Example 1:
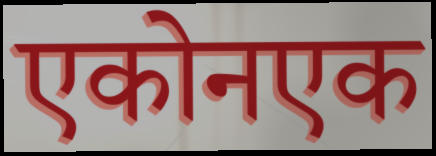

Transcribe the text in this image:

एकोनएक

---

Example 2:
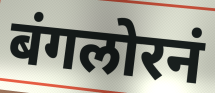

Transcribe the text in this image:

बंगलोरनं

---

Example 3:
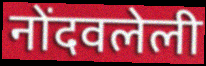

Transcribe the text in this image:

नोंदवलेली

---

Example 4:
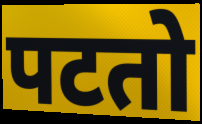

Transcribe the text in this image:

पटतो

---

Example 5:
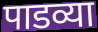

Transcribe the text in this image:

पाडव्या